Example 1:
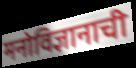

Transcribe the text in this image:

मनोविज्ञानाची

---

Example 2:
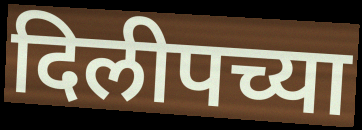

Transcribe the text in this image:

दिलीपच्या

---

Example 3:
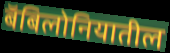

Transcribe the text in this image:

बॅबिलोनियातील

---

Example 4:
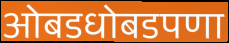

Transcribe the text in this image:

ओबडधोबडपणा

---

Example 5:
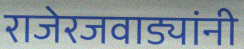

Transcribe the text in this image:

राजेरजवाड्यांनी